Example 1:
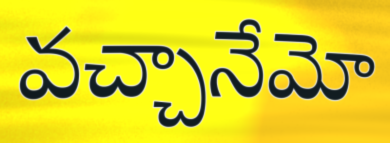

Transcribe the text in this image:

వచ్చానేమో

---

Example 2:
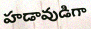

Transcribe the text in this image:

హడావుడిగా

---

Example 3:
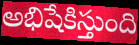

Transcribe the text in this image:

అభిషేకిస్తుంది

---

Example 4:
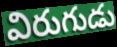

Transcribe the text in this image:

విరుగుడు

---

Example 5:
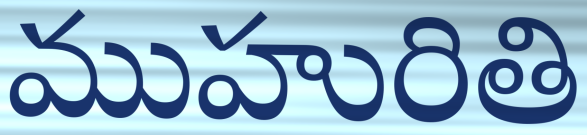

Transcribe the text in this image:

ముహురితి